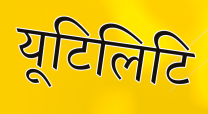
यूटिलिटि